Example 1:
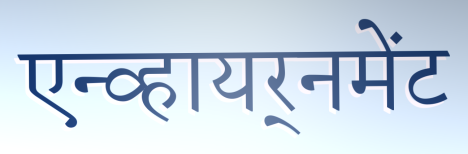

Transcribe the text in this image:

एन्व्हायर्नमेंट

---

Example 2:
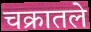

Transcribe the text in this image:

चक्रातले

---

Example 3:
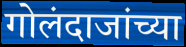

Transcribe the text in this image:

गोलंदाजांच्या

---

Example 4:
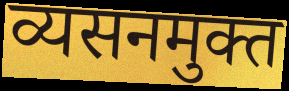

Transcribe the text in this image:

व्यसनमुक्त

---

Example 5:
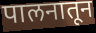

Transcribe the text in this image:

पालनातून